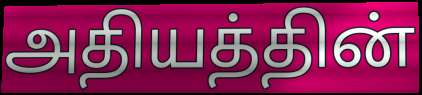
அதியத்தின்